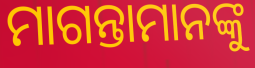
ମାଗନ୍ତାମାନଙ୍କୁ